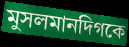
মুসলমানদিগকে